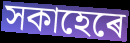
সকাহেৰে